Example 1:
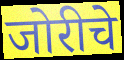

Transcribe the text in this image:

जोरीचे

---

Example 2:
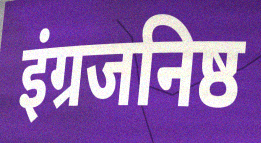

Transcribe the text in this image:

इंग्रजनिष्ठ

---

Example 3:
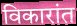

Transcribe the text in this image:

विकारांत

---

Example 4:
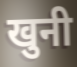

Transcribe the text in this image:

खुनी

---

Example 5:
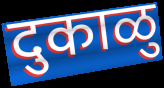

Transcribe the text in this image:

दुकाळु